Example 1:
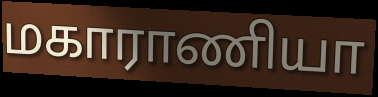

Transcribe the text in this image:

மகாராணியா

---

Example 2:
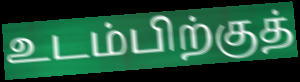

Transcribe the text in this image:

உடம்பிற்குத்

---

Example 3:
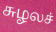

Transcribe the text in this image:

சுழலச்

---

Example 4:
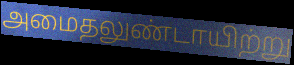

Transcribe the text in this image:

அமைதலுண்டாயிற்று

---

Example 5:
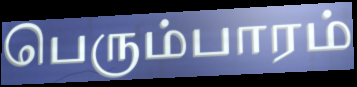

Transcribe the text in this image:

பெரும்பாரம்